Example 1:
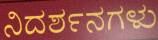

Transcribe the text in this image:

ನಿದರ್ಶನಗಳು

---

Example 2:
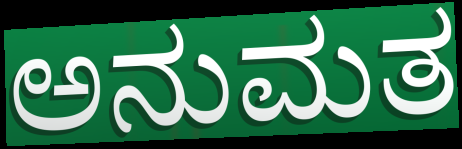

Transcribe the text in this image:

ಅನುಮತ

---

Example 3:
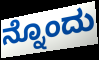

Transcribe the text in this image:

ನ್ನೊಂದು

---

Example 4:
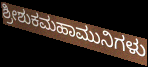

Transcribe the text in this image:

ಶ್ರೀಶುಕಮಹಾಮುನಿಗಳು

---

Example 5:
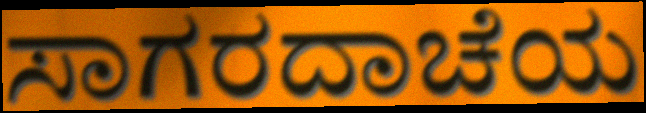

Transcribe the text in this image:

ಸಾಗರದಾಚೆಯ